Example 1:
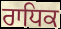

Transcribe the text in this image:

ਰਾਧਿਕ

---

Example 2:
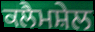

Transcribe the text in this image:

ਕਲੈਮਸ਼ੇਲ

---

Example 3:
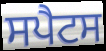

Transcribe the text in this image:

ਸਪੈਟਸ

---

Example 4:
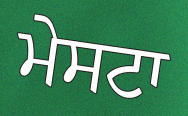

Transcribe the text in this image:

ਮੇਸਟਾ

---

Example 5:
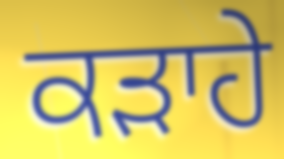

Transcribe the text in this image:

ਕੜਾਹੇ